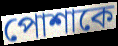
পোশাকে